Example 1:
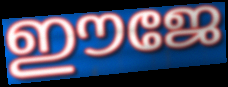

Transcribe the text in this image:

ഈജേ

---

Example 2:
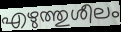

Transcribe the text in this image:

എഴുത്തുശീലം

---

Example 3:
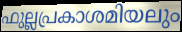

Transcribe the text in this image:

ഫുല്ലപ്രകാശമിയലും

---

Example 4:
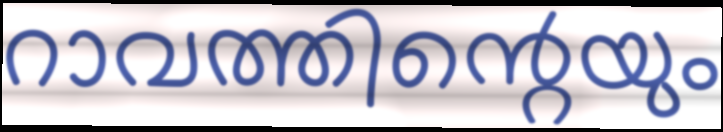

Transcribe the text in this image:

റാവത്തിന്റെയും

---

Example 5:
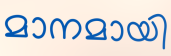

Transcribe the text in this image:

മാനമായി